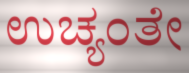
ಉಚ್ಯಂತೇ